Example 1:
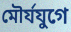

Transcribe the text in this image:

মৌর্যযুগে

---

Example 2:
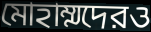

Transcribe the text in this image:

মোহাম্মদেরও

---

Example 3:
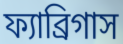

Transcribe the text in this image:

ফ্যাব্রিগাস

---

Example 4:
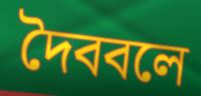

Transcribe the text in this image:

দৈববলে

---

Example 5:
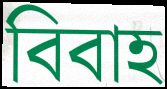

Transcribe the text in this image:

বিবাহ